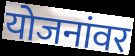
योजनांवर